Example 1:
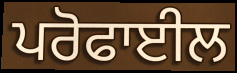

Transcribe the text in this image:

ਪਰੋਫਾਈਲ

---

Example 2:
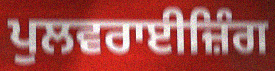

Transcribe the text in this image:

ਪੁਲਵਰਾਈਜ਼ਿੰਗ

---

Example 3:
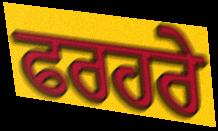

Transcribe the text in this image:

ਫਰਹਰੇ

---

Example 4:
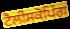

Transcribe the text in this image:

ਟੈਲੀਸਕੋਪਿੰਗ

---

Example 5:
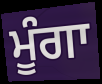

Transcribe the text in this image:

ਮੂੰਗਾ